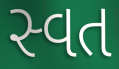
સ્વત